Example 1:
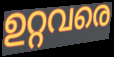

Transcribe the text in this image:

ഉറ്റവരെ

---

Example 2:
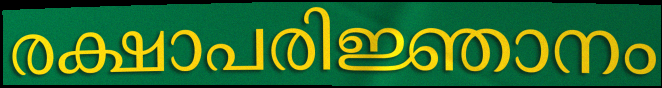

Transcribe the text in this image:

രക്ഷാപരിജ്ഞാനം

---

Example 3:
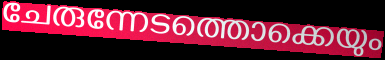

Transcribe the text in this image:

ചേരുന്നേടത്തൊക്കെയും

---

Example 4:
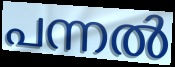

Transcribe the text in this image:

പന്നൽ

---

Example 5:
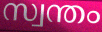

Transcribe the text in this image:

സ്വന്തം